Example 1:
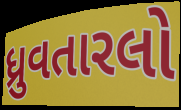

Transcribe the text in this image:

ધ્રુવતારલો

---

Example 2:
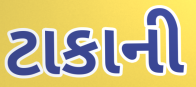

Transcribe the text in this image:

ટાકાની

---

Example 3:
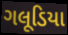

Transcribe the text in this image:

ગલૂડિયા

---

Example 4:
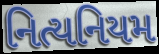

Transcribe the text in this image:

નિત્યનિયમ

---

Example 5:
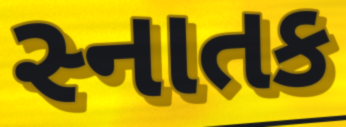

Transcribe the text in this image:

સ્નાતક